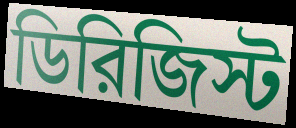
ডিরিজিস্ট